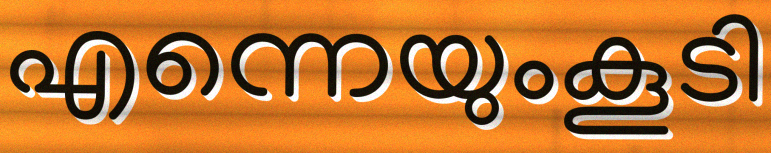
എന്നെയുംകൂടി